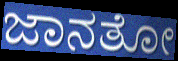
ಜಾನತೋ